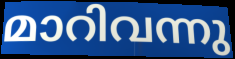
മാറിവന്നു